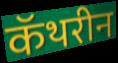
कॅथरीन